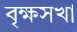
বৃক্ষসখা